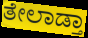
ತೇಲಾಡ್ತಾ